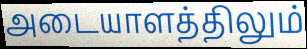
அடையாளத்திலும்